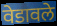
वेडावले